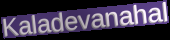
Kaladevanahal